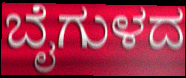
ಬೈಗುಳದ